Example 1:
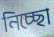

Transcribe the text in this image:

নিচ্ছো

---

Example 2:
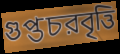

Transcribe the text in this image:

গুপ্তচরবৃত্তি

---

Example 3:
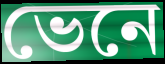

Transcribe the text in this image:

ভেনে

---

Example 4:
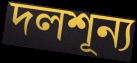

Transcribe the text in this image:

দলশূন্য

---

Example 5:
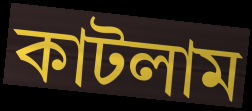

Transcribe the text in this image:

কাটলাম